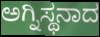
ಅಗ್ನಿಸ್ಥನಾದ